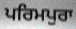
ਪਰਿਮਪੁਰਾ